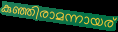
കുഞ്ഞിരാമന്നായര്